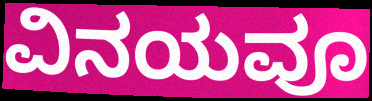
ವಿನಯವೂ